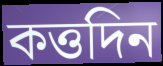
কত্তদিন